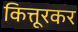
कित्तूरकर